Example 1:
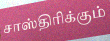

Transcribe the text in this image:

சாஸ்திரிக்கும்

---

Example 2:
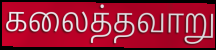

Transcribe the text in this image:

கலைத்தவாறு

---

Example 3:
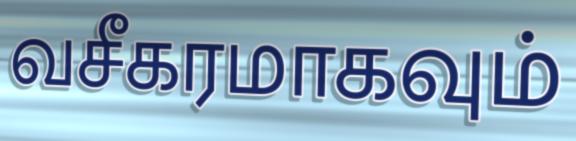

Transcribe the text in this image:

வசீகரமாகவும்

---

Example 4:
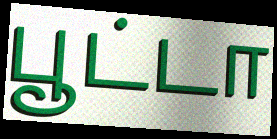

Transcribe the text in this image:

பூட்டா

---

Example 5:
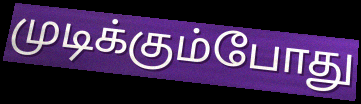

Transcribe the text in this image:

முடிக்கும்போது